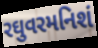
રઘુવરમનિશં